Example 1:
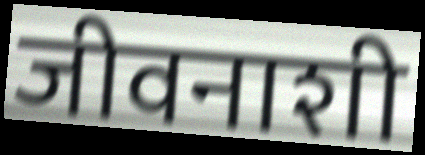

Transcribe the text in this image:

जीवनाशी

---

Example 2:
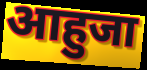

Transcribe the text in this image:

आहुजा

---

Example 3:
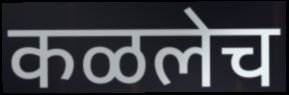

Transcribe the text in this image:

कळलेच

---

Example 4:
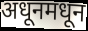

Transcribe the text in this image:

अधूनमधून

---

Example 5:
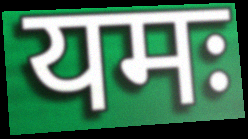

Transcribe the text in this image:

यमः